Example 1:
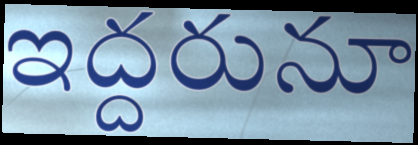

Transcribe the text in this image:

ఇద్దరునూ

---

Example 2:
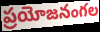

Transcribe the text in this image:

ప్రయోజనంగల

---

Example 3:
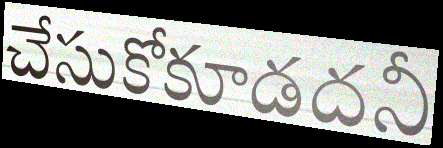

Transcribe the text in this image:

చేసుకోకూడదనీ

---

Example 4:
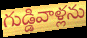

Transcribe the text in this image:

గుడ్డివాళ్లను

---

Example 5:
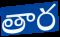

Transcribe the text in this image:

తార